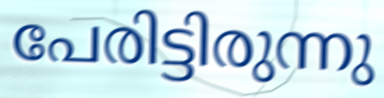
പേരിട്ടിരുന്നു